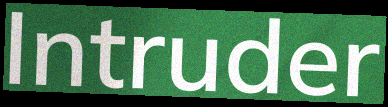
Intruder